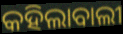
କହିଲାବାଲୀ